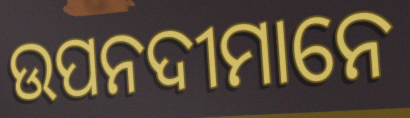
ଉପନଦୀମାନେ